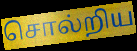
சொல்றிய